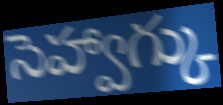
సెహ్వాగ్కు